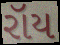
રૉય